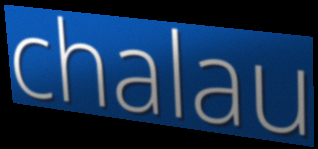
chalau